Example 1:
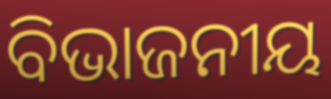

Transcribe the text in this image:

ବିଭାଜନୀୟ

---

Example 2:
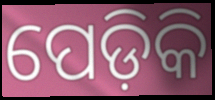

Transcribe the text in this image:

ପେଡ଼ିକି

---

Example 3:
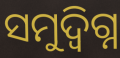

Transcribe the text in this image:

ସମୁଦ୍ବିଗ୍ନ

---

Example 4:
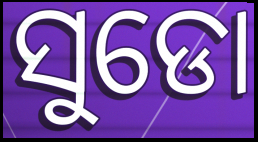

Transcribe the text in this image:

ସୁଡୋ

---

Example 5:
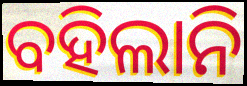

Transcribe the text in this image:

ବହିଲାନି